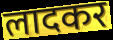
लादकर